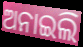
ଅନାଇଲି